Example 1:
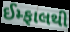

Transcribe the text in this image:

ઈમ્ફાલથી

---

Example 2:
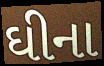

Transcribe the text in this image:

ઘીના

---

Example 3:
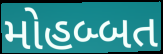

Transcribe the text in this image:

મોહબ્બત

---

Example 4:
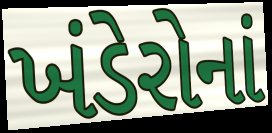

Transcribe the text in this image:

ખંડેરોનાં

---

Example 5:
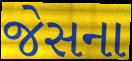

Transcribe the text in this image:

જેસના